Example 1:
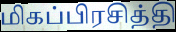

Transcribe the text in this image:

மிகப்பிரசித்தி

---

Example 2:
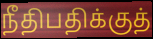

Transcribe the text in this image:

நீதிபதிக்குத்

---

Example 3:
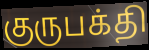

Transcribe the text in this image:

குருபக்தி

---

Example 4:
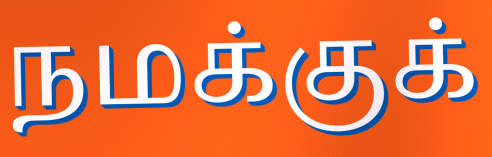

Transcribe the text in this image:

நமக்குக்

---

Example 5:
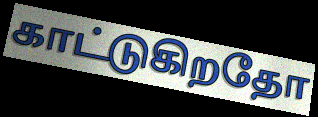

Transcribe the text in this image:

காட்டுகிறதோ